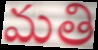
మతి